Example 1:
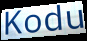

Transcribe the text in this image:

Kodu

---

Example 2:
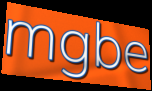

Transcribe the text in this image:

mgbe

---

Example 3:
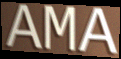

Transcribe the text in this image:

AMA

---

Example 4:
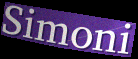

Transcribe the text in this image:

Simoni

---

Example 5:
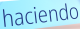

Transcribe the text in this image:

haciendo